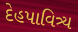
દેહપાવિત્ર્ય